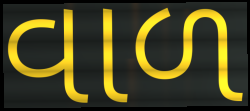
વાળ